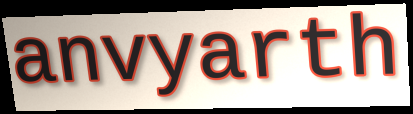
anvyarth